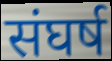
संघर्ष